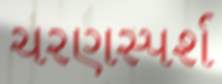
ચરણસ્પર્શ